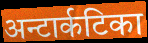
अन्टार्कटिका